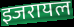
इजरायल